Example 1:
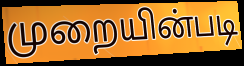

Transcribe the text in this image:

முறையின்படி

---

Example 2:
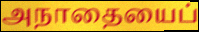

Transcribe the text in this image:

அநாதையைப்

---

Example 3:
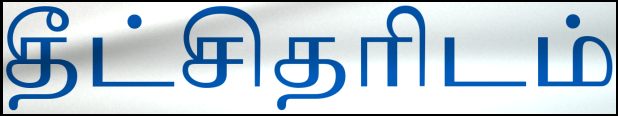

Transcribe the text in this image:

தீட்சிதரிடம்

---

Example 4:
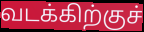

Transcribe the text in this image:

வடக்கிற்குச்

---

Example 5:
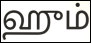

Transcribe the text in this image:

ஹும்